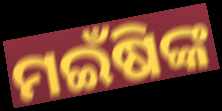
ମଇଁଷିଙ୍କ